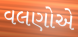
વલણોએ